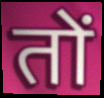
तों